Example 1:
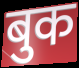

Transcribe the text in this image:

बुक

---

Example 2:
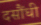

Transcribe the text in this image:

दसौंधी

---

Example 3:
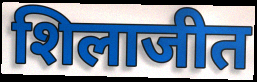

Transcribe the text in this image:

शिलाजीत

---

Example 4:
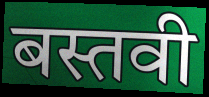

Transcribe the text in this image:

बस्तवी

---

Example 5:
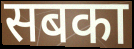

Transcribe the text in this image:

सबका